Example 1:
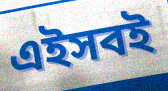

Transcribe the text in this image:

এইসবই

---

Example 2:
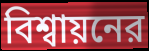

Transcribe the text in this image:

বিশ্বায়নের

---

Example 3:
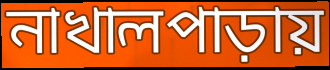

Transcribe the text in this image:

নাখালপাড়ায়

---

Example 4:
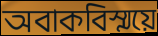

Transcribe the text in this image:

অবাকবিস্ময়ে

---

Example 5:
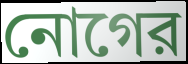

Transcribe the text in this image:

নোগের